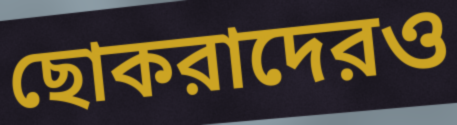
ছোকরাদেরও